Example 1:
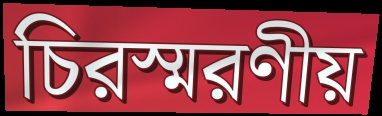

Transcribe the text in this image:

চিরস্মরণীয়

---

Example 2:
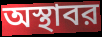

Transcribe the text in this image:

অস্থাবর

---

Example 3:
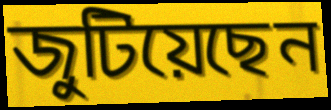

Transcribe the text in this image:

জুটিয়েছেন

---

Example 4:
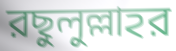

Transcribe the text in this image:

রছুলুল্লাহর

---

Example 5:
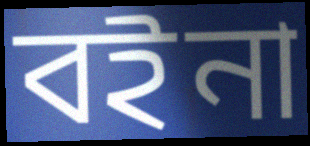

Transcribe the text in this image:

বইনা